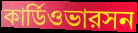
কার্ডিওভারসন